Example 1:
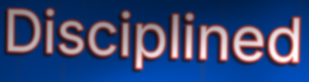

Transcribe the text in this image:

Disciplined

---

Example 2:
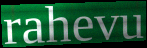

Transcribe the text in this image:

rahevu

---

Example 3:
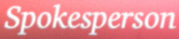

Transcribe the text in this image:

Spokesperson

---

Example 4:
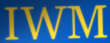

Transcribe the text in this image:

IWM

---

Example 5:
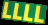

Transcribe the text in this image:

LLLL